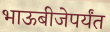
भाऊबीजेपर्यंत